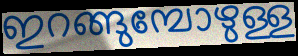
ഇറങ്ങുമ്പോഴുള്ള